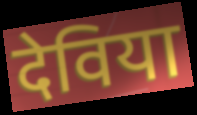
देविया